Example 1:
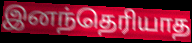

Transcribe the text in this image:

இனந்தெரியாத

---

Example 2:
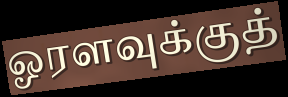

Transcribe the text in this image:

ஓரளவுக்குத்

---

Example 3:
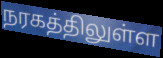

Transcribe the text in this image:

நரகத்திலுள்ள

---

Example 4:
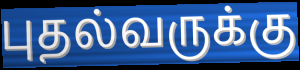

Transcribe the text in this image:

புதல்வருக்கு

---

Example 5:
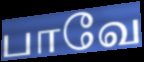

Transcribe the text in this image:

பாவே